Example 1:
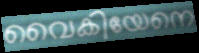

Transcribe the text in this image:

വൈകിയേനെ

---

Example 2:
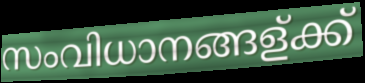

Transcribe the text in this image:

സംവിധാനങ്ങള്ക്ക്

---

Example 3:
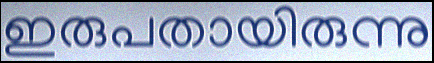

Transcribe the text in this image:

ഇരുപതായിരുന്നു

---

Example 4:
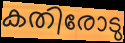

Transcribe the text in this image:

കതിരോടു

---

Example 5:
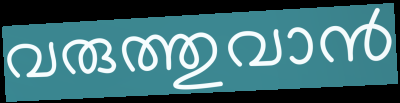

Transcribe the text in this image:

വരുത്തുവാൻ